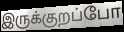
இருக்குறப்போ